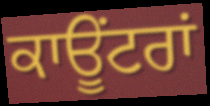
ਕਾਊਂਟਰਾਂ